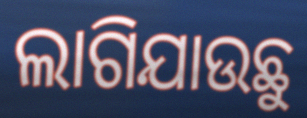
ଲାଗିଯାଉଛୁ